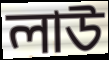
লাউ